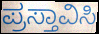
ಪ್ರಸ್ತಾವಿಸಿ